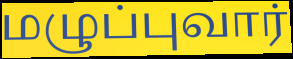
மழுப்புவார்